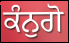
ਕੰਨੁਗੋ